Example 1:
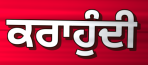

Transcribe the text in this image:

ਕਰਾਹੁੰਦੀ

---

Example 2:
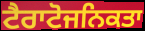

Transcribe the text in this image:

ਟੈਰਾਟੋਜਨਿਕਤਾ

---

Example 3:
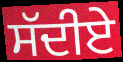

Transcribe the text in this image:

ਸੱਦੀਏ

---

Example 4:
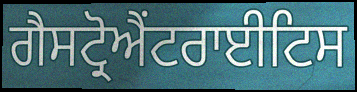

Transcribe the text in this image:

ਗੈਸਟ੍ਰੋਐਂਟਰਾਈਟਿਸ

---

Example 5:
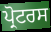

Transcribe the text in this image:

ਪ੍ਰੋਟਰਸ